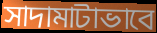
সাদামাটাভাবে